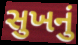
સુખનું